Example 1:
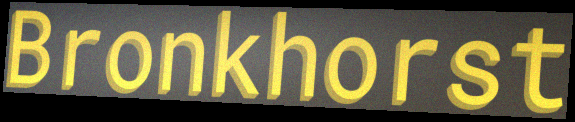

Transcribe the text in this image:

Bronkhorst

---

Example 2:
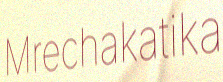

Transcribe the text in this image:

Mrechakatika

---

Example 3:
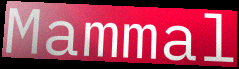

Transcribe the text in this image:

Mammal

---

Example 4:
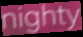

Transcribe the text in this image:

nighty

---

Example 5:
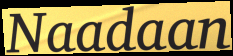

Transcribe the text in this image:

Naadaan